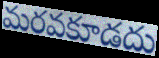
మరవకూడదు